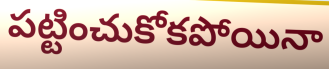
పట్టించుకోకపోయినా